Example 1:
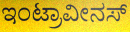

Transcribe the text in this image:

ಇಂಟ್ರಾವೀನಸ್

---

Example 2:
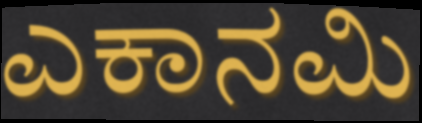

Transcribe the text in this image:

ಎಕಾನಮಿ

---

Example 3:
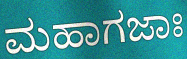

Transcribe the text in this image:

ಮಹಾಗಜಾಃ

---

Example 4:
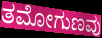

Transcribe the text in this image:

ತಮೋಗುಣವು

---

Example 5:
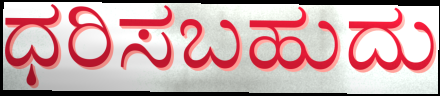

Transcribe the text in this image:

ಧರಿಸಬಹುದು